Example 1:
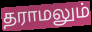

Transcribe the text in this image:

தராமலும்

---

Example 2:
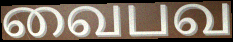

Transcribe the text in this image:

வைபவ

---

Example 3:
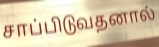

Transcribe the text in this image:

சாப்பிடுவதனால்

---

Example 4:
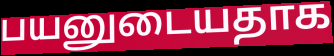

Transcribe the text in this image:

பயனுடையதாக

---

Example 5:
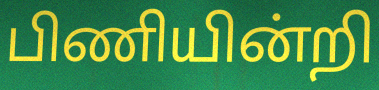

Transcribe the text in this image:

பிணியின்றி